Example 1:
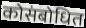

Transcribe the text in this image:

कोसंबोधित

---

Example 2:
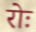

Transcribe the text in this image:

रोः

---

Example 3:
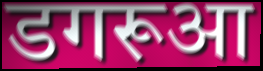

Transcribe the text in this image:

डगरूआ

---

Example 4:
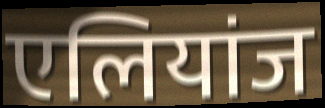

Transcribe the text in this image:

एलियांज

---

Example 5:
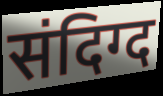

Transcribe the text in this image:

संदिग्द